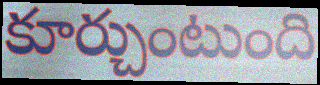
కూర్చుంటుంది